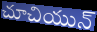
చూచియున్